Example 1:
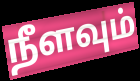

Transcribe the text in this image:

நீளவும்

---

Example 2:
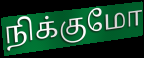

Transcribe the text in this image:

நிக்குமோ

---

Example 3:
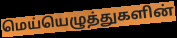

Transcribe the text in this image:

மெய்யெழுத்துகளின்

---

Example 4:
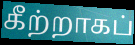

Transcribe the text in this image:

கீற்றாகப்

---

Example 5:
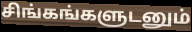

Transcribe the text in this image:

சிங்கங்களுடனும்